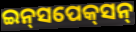
ଇନ୍‌ସପେକ୍‌ସନ୍